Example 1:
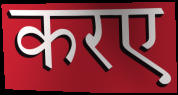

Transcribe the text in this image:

करए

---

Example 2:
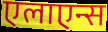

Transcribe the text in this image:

एलाएन्स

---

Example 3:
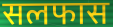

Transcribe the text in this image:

सलफास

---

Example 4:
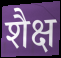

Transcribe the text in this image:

शैक्ष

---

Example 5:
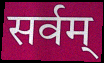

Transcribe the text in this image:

सर्वम्